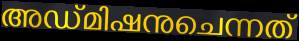
അഡ്മിഷനുചെന്നത്